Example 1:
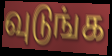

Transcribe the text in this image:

வுடுங்க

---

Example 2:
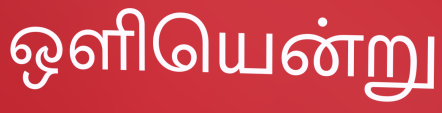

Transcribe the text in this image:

ஒளியென்று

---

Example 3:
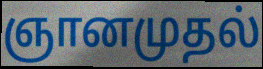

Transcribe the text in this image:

ஞானமுதல்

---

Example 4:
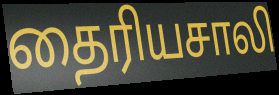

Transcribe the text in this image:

தைரியசாலி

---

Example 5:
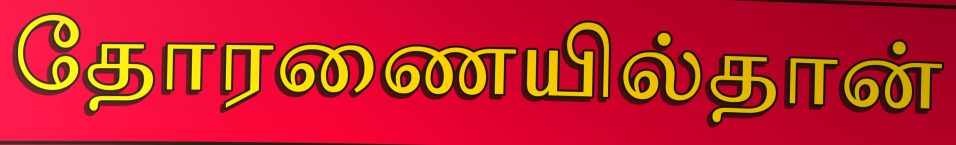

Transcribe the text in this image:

தோரணையில்தான்